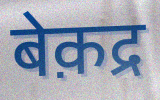
बेक़द्र